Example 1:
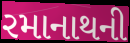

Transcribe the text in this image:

રમાનાથની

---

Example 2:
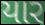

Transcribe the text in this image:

યાર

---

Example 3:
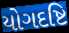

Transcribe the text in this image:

યોગદષ્ટિ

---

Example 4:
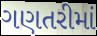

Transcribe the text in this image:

ગણતરીમાં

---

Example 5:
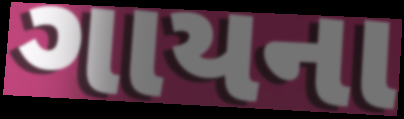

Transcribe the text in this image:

ગાયના